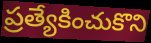
ప్రత్యేకించుకొని